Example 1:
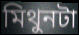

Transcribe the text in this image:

মিথুনটা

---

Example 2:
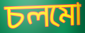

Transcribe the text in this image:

চলমো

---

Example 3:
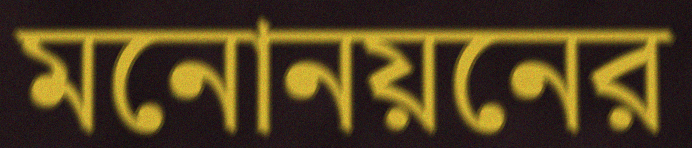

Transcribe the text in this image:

মনোনয়নের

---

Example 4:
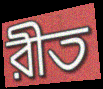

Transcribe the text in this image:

রীত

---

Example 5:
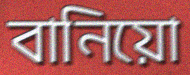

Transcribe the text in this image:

বানিয়ো